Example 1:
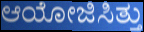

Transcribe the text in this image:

ಆಯೋಜಿಸಿತ್ತು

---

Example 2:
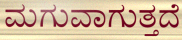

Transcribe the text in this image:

ಮಗುವಾಗುತ್ತದೆ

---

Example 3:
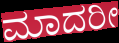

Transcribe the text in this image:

ಮಾದರೀ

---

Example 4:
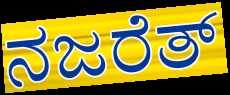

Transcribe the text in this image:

ನಜರೆತ್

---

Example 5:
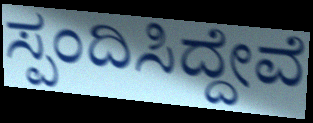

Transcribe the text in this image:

ಸ್ಪಂದಿಸಿದ್ದೇವೆ